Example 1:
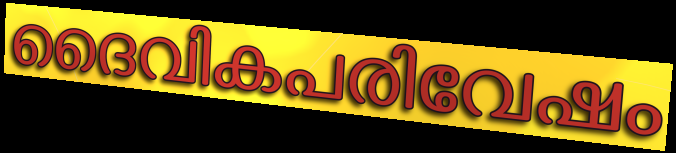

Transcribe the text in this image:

ദൈവികപരിവേഷം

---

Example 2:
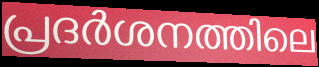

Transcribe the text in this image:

പ്രദർശനത്തിലെ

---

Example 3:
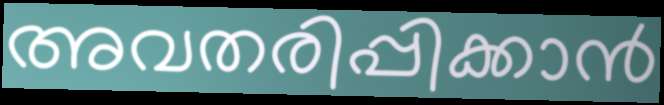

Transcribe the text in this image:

അവതരിപ്പിക്കാൻ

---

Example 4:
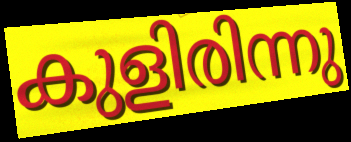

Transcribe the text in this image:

കുളിരിന്നു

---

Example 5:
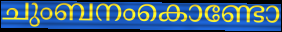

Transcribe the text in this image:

ചുംബനംകൊണ്ടോ